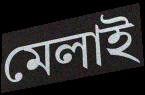
মেলাই